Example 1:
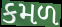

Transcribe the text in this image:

કમળ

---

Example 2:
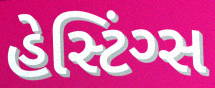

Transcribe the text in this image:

હેસ્ટિંગ્સ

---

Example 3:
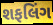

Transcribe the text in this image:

શફલિંગ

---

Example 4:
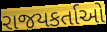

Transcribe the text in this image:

રાજયકર્તાઓ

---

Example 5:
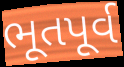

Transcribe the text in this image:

ભૂતપૂર્વ